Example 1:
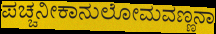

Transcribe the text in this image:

ಪಚ್ಚನೀಕಾನುಲೋಮವಣ್ಣನಾ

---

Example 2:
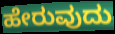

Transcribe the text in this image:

ಹೇರುವುದು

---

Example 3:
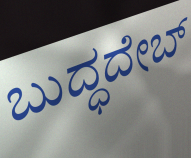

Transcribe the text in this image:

ಬುದ್ಧದೇಬ್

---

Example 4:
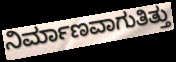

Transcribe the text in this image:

ನಿರ್ಮಾಣವಾಗುತಿತ್ತು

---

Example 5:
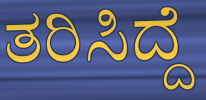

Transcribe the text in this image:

ತರಿಸಿದ್ದೆ